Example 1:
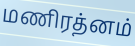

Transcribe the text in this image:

மணிரத்னம்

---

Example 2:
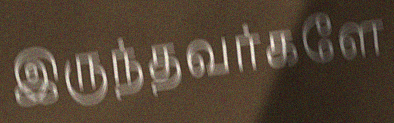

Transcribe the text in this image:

இருந்தவர்களே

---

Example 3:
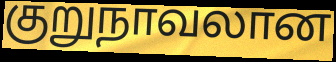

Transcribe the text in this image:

குறுநாவலான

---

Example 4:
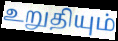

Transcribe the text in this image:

உறுதியும்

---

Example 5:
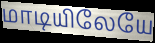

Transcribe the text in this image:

மாடியிலேயே